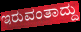
ಇರುವಂತಾದ್ದು